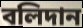
বলিদান